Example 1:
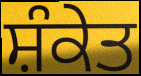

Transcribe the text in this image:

ਸ਼ੰਕੇਤ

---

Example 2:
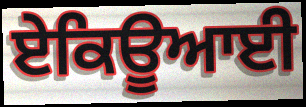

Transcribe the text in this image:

ਏਕਿਊਆਈ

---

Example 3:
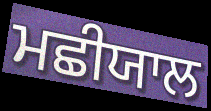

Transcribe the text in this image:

ਮਛੀਯਾਲ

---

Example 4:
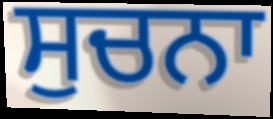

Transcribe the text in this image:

ਸੁਚਨਾ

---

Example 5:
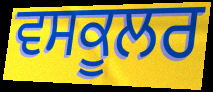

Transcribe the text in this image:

ਵਸਕੂਲਰ